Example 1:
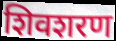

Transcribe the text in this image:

शिवशरण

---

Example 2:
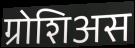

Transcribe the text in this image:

ग्रोशिअस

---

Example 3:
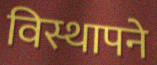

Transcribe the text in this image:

विस्थापने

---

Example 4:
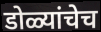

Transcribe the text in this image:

डोळ्यांचेच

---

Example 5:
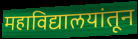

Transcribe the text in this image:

महाविद्यालयांतून